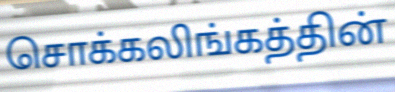
சொக்கலிங்கத்தின்